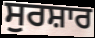
ਸੁਰਸ਼ਾਰ